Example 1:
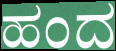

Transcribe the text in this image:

ಹಂದ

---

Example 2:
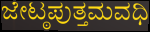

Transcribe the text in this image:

ಜೇಟ್ಠಪುತ್ತಮವಧಿ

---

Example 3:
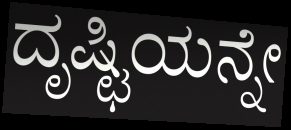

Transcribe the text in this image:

ದೃಷ್ಟಿಯನ್ನೇ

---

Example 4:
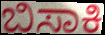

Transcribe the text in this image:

ಬಿಸಾಕಿ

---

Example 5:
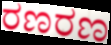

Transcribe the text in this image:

ರಣರಣ